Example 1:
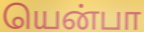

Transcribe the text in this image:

யென்பா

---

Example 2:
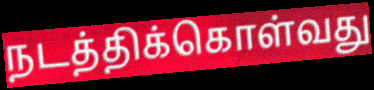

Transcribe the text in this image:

நடத்திக்கொள்வது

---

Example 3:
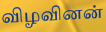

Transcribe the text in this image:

விழவினன்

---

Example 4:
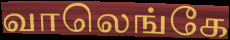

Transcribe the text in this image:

வாலெங்கே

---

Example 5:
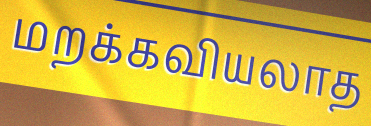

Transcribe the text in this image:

மறக்கவியலாத